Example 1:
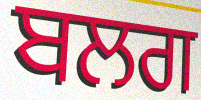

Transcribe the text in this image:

ਬਲਗ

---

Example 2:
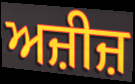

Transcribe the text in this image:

ਅਜ਼ੀਜ਼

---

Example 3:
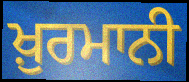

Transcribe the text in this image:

ਖ਼ੁਰਮਾਨੀ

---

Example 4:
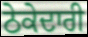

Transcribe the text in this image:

ਠੇਕੇਦਾਰੀ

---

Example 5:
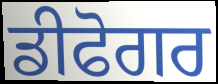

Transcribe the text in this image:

ਡੀਫੋਗਰ